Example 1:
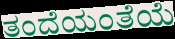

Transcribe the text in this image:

ತಂದೆಯಂತೆಯೆ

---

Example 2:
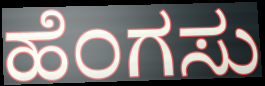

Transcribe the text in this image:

ಹೆಂಗಸು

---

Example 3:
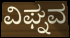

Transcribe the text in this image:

ವಿಘ್ನವ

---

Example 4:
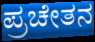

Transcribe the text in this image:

ಪ್ರಚೇತನ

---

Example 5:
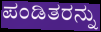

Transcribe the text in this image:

ಪಂಡಿತರನ್ನು